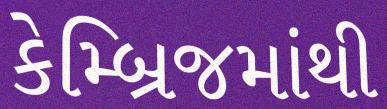
કેમ્બ્રિજમાંથી